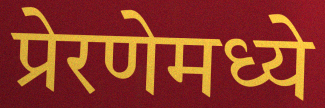
प्रेरणेमध्ये